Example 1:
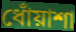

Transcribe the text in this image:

ধোঁয়াশা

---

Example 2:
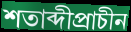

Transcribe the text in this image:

শতাব্দীপ্রাচীন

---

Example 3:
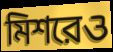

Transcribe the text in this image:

মিশরেও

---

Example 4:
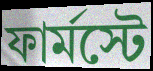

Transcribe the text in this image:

ফার্মস্টে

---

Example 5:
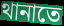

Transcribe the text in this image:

থানাতে